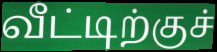
வீட்டிற்குச்